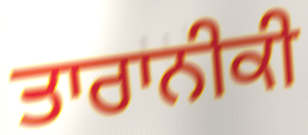
ਤਾਰਾਨੀਕੀ